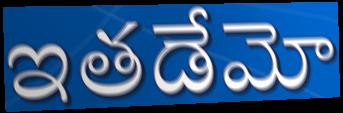
ఇతడేమో